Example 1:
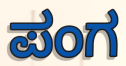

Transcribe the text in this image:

ಪಂಗ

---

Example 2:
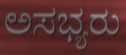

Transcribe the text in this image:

ಅಸಭ್ಯರು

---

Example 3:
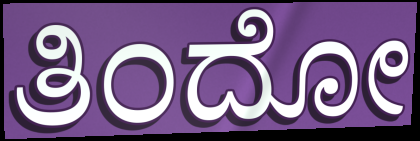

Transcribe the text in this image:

ತಿಂದೋ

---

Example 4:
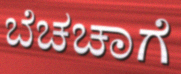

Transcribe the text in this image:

ಬೆಚಚಾಗೆ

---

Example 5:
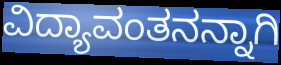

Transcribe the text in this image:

ವಿದ್ಯಾವಂತನನ್ನಾಗಿ